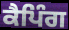
ਕੈਪਿੰਗ